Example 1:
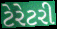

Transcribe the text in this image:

ટેરેટરી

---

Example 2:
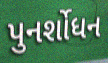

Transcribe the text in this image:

પુનર્શોધન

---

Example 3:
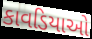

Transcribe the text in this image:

કાવડિયાઓ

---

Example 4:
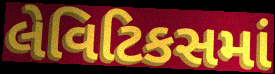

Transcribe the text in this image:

લેવિટિકસમાં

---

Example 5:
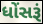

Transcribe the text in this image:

ધોંસરૂં